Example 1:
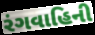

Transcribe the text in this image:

રંગવાહિની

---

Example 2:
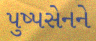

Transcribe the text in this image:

પુષ્પસેનને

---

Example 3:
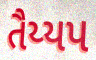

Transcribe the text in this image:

તૈય્યપ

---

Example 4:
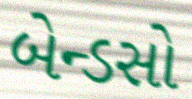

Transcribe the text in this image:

બેન્ડસો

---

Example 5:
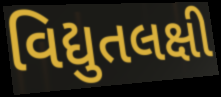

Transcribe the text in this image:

વિદ્યુતલક્ષી